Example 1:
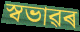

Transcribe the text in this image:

স্বভাৱৰ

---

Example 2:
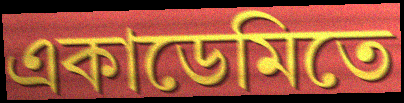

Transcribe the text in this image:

একাডেমিতে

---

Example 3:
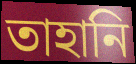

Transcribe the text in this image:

তাহানি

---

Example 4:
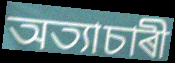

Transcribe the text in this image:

অত্যাচাৰী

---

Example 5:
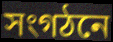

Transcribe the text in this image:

সংগঠনে